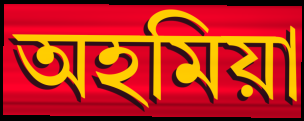
অহমিয়া